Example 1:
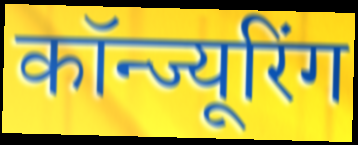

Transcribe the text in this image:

कॉन्ज्यूरिंग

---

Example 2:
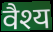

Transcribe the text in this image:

वैश्य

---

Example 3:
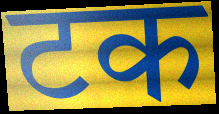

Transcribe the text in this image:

टक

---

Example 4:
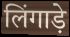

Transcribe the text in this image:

लिंगाड़े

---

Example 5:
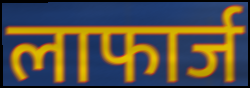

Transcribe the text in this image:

लाफार्ज